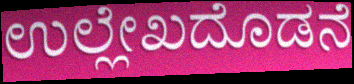
ಉಲ್ಲೇಖದೊಡನೆ